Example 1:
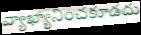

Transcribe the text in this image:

వ్యాఖ్యానించకూడదు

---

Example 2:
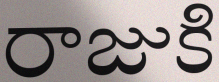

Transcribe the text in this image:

రాజుకి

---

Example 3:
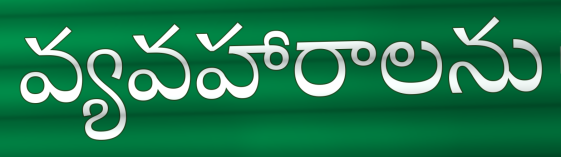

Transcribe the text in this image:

వ్యవహారాలను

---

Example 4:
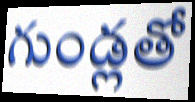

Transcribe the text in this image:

గుండ్లతో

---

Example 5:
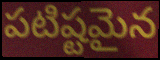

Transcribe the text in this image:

పటిష్టమైన